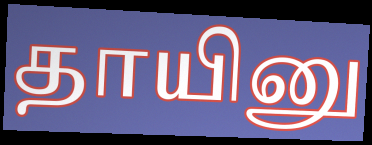
தாயினு